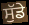
ਸੁੱਡੇ